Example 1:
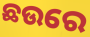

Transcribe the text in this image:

ଛଉରେ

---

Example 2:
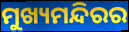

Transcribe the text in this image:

ମୁଖ୍ୟମନ୍ଦିରର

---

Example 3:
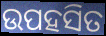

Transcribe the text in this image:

ଉପହସିତ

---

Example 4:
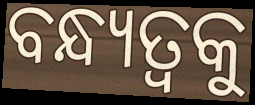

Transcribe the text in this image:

ବନ୍ଧ୍ୟତ୍ୱକୁ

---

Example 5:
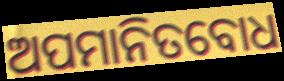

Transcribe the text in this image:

ଅପମାନିତବୋଧ